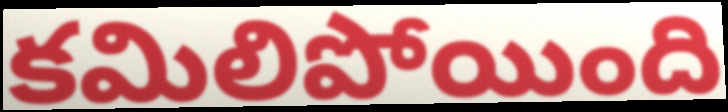
కమిలిపోయింది